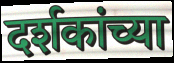
दर्शकांच्या